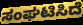
ಸಂಘಟಿಸಿದೆ